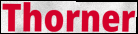
Thorner